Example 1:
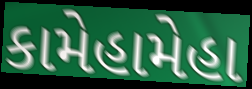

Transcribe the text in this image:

કામેહામેહા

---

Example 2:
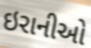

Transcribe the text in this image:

ઇરાનીઓ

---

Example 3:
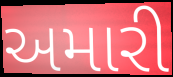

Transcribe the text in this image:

અમારી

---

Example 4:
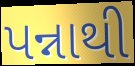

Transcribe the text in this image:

પન્નાથી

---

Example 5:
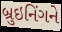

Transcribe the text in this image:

બ્રુઇનિંગને